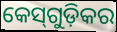
କେସ୍‌ଗୁଡ଼ିକର